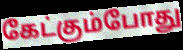
கேட்கும்போது